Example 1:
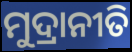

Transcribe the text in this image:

ମୁଦ୍ରାନୀତି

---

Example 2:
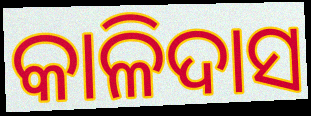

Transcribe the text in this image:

କାଳିଦାସ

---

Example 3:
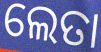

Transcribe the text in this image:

ଲେତା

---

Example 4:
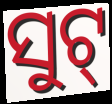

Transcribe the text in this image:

ସୁଟ୍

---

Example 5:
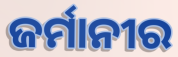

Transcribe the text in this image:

ଜର୍ମାନୀର